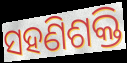
ସହଣିଶକ୍ତି